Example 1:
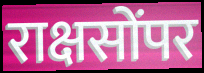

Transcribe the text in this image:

राक्षसोंपर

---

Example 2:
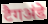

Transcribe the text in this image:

टैगअंडे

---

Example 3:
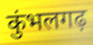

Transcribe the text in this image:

कुंभलगढ़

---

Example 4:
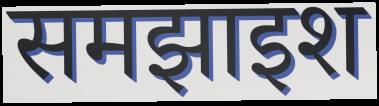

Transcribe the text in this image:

समझाइश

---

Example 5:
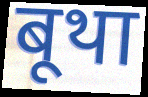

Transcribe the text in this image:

बूथा